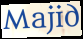
Majid